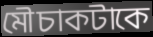
মৌচাকটাকে